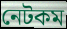
নেটকম